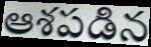
ఆశపడిన